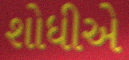
શોધીએ